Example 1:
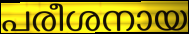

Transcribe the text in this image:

പരീശനായ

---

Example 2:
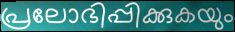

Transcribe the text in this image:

പ്രലോഭിപ്പിക്കുകയും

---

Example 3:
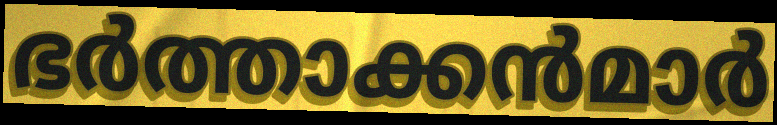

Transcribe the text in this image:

ഭർത്താക്കൻമാർ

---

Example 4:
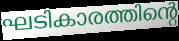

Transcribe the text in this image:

ഘടികാരത്തിന്റെ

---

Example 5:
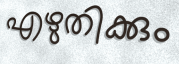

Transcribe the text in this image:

എഴുതിക്കും